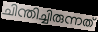
ചിന്തിച്ചിരുന്നത്